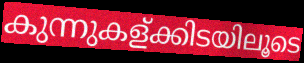
കുന്നുകള്ക്കിടയിലൂടെ